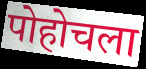
पोहोचला